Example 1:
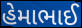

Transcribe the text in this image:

હેમાભાઈ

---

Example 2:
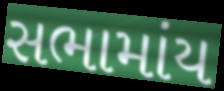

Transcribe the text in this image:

સભામાંય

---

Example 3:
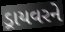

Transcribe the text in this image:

ડ્રાયવરને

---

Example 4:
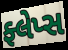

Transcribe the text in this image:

ફ્લેપ્સ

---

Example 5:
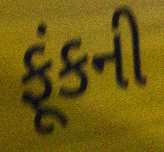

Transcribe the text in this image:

ફૂંકની